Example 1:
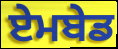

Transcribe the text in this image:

ਏਮਬੇਡ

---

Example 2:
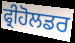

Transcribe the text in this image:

ਫ੍ਰੀਹੋਲਡਰ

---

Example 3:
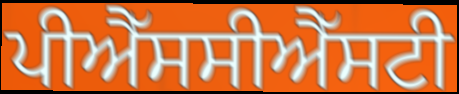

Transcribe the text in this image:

ਪੀਐੱਸਸੀਐੱਸਟੀ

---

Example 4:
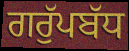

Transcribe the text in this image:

ਗਰੁੱਪਬੱਧ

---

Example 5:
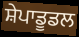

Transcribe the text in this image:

ਸ਼ੇਪਾਡੂਡਲ